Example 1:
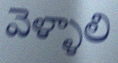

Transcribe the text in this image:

వెళ్ళాలి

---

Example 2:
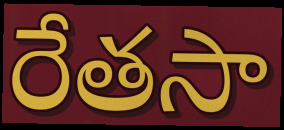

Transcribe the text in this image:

రేతసా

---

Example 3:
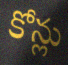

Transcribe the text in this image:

కోన్లు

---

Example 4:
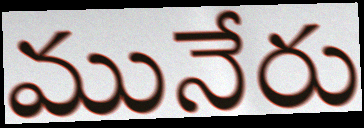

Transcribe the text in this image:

మునేరు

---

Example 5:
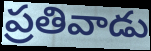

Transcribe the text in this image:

ప్రతివాడు